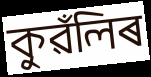
কুৱঁলিৰ